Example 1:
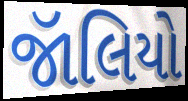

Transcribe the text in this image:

જૉલિયો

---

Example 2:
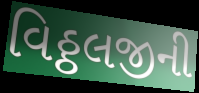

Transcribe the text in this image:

વિઠ્ઠલજીની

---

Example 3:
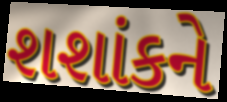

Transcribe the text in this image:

શશાંકને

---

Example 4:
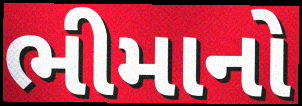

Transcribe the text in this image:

ભીમાનો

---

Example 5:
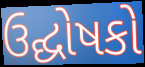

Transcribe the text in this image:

ઉદ્ઘોષકો